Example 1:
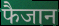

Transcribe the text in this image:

फैजान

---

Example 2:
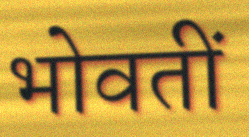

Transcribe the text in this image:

भोवतीं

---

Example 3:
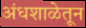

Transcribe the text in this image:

अंधशाळेतून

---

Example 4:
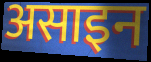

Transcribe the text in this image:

असाइन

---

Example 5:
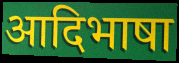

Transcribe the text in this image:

आदिभाषा